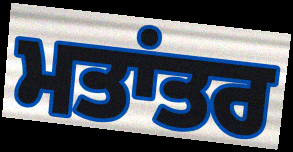
ਮਤਾਂਤਰ